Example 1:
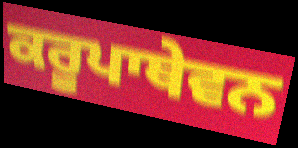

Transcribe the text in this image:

ਕਰੂਪਾਥੇਵਨ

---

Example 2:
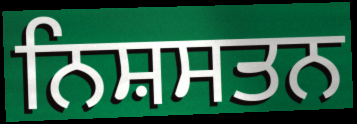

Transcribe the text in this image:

ਨਿਸ਼ਸਤਨ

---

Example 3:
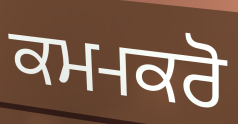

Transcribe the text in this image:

ਕਮ੍ਮਕਰੋ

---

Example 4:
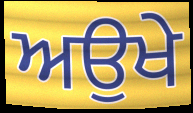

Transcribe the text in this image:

ਅਉਖੇ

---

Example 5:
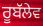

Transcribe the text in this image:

ਰੂਬੱਲੇਵ